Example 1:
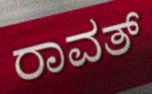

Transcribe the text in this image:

ರಾವತ್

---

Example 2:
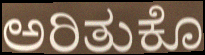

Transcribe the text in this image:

ಅರಿತುಕೊ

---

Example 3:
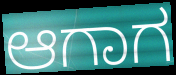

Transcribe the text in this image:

ಆಗಾಗ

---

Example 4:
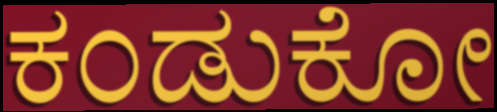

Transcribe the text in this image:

ಕಂಡುಕೋ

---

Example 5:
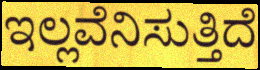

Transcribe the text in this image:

ಇಲ್ಲವೆನಿಸುತ್ತಿದೆ